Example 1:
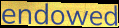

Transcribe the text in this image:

endowed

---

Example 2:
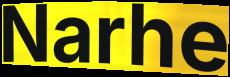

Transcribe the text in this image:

Narhe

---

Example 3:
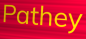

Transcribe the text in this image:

Pathey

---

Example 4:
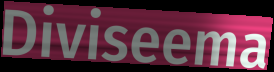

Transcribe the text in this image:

Diviseema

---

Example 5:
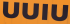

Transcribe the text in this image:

UUIU